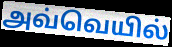
அவ்வெயில்